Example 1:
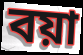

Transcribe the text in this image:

বয়া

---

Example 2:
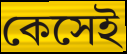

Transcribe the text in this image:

কেসেই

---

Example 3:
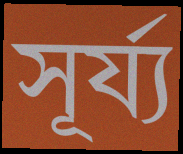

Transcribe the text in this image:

সূর্য্য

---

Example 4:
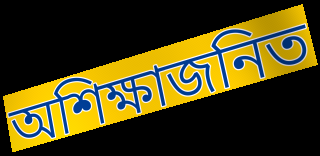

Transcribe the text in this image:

অশিক্ষাজনিত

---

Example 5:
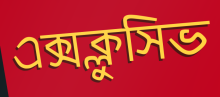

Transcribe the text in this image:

এক্সক্লুসিভ